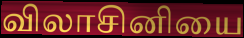
விலாசினியை